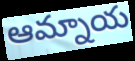
ఆమ్నాయ